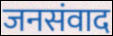
जनसंवाद